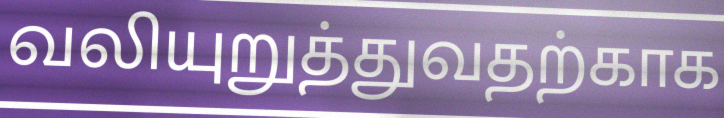
வலியுறுத்துவதற்காக